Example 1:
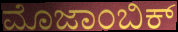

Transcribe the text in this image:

ಮೊಜಾಂಬಿಕ್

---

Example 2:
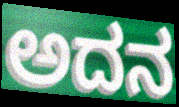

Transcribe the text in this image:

ಅದನ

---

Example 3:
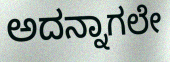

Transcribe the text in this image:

ಅದನ್ನಾಗಲೇ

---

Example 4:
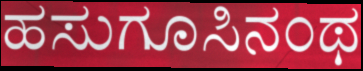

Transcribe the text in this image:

ಹಸುಗೂಸಿನಂಥ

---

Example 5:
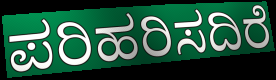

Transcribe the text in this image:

ಪರಿಹರಿಸದಿರೆ